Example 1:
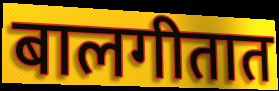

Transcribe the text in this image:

बालगीतात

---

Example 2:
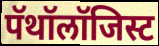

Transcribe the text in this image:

पॅथॉलॉजिस्ट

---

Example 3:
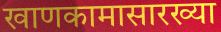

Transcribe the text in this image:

खाणकामासारख्या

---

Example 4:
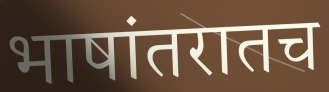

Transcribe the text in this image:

भाषांतरातच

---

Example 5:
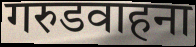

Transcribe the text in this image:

गरुडवाहना